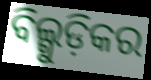
ବିଲ୍ଗୁଡ଼ିକର